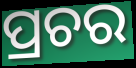
ପ୍ରଚର